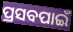
ପ୍ରସବପାଇଁ